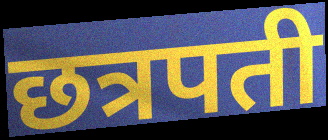
छत्रपती